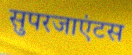
सुपरजाएंटस